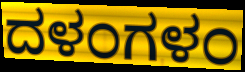
ದಳಂಗಳಂ